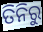
ତିନିରୁ